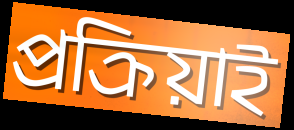
প্ৰক্ৰিয়াই